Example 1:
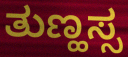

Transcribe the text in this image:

ತುಣ್ಹಸ್ಸ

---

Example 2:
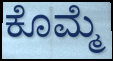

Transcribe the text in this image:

ಕೊಮ್ಮೆ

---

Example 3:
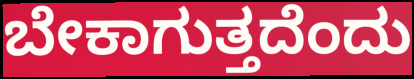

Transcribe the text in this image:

ಬೇಕಾಗುತ್ತದೆಂದು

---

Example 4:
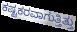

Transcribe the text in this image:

ಕಷ್ಟಕರವಾಗುತ್ತಿತ್ತು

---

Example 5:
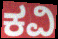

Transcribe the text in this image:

ಕವಿ